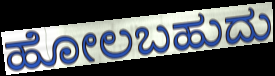
ಹೋಲಬಹುದು